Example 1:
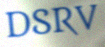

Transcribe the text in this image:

DSRV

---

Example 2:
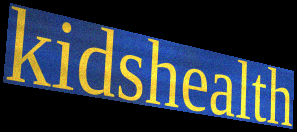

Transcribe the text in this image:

kidshealth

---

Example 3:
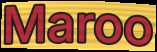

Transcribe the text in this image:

Maroo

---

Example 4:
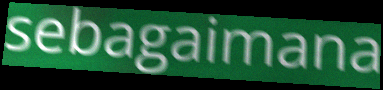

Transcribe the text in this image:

sebagaimana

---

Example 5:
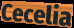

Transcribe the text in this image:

Cecelia